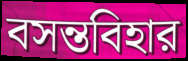
বসন্তবিহার